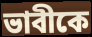
ভাবীকে